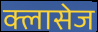
क्लासेज